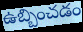
ఉబ్బించడం